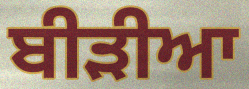
ਬੀੜੀਆ